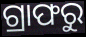
ଗ୍ରାଫରୁ